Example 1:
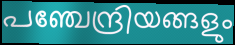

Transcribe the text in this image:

പഞ്ചേന്ദ്രിയങ്ങളും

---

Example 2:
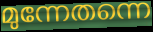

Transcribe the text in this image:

മുന്നേതന്നെ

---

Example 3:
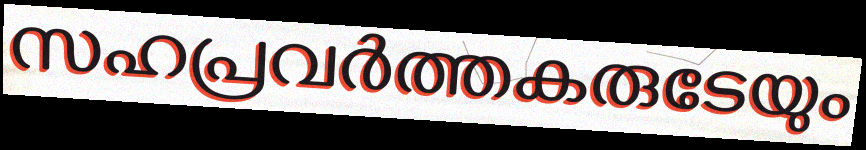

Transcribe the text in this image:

സഹപ്രവർത്തകരുടേയും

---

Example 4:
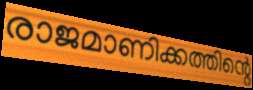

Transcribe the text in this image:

രാജമാണിക്കത്തിന്റെ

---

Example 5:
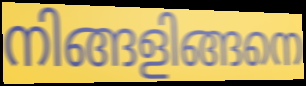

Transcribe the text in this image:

നിങ്ങളിങ്ങനെ